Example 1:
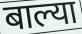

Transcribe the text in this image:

बाल्या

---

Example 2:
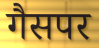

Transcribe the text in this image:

गैसपर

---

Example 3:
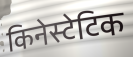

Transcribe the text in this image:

किनेस्टेटिक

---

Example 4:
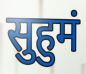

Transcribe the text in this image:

सुहुमं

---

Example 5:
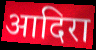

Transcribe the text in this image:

आदिरा